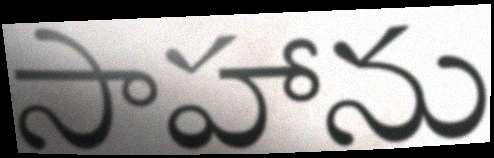
సాహాను